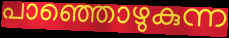
പാഞ്ഞൊഴുകുന്ന